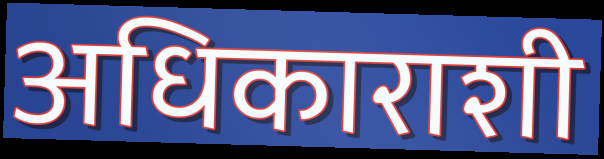
अधिकाराशी